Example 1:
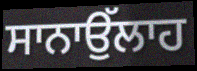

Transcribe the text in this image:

ਸਾਨਾਉੱਲਾਹ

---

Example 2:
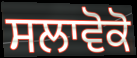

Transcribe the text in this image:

ਸਲਾਵੋਕੋ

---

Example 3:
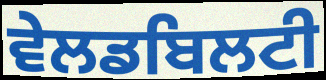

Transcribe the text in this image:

ਵੇਲਡਬਿਲਟੀ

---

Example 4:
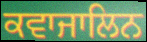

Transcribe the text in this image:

ਕਵਾਜਾਲਿਨ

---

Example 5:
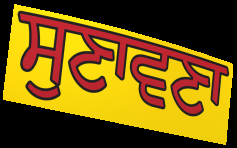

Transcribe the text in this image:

ਸੁਣਾਵਣਾ